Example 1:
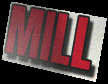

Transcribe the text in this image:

MILL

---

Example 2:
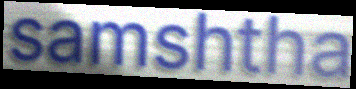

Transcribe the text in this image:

samshtha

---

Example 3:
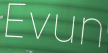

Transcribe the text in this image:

Evun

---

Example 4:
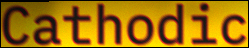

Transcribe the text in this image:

Cathodic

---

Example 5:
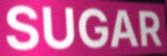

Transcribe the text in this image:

SUGAR